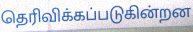
தெரிவிக்கப்படுகின்றன